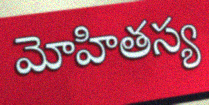
మోహితస్య